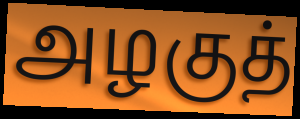
அழகுத்